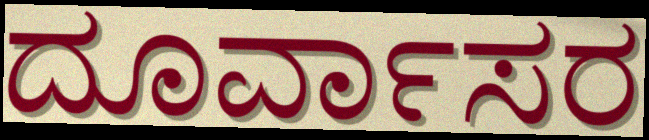
ದೂರ್ವಾಸರ